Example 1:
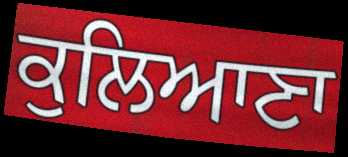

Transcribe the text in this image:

ਕੁਲਿਆਣਾ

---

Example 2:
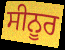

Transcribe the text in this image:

ਸੀਨੂਰ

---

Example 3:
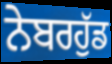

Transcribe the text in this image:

ਨੇਬਰਹੁੱਡ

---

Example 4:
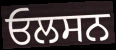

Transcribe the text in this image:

ਓਲਸਨ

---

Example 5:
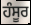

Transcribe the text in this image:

ਹੰਸੂਰ